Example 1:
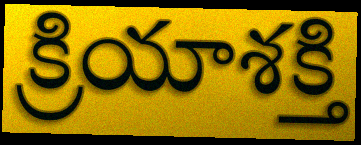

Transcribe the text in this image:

క్రియాశక్తి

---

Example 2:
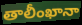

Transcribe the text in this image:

తాలీంఖానా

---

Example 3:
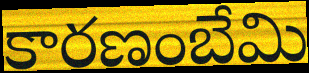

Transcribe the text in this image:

కారణంబేమి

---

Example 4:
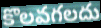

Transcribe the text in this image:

కొలవగలదు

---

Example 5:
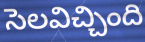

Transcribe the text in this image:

సెలవిచ్చింది